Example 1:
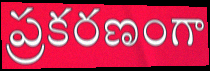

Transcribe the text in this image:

ప్రకరణంగా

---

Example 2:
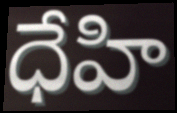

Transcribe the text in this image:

ధేహి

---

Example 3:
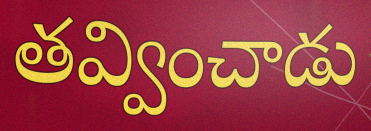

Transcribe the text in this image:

తవ్వించాడు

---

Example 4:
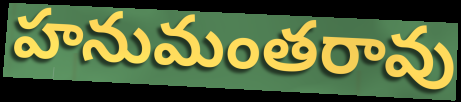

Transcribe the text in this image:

హనుమంతరావు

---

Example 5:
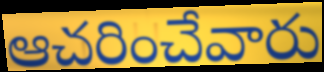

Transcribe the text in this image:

ఆచరించేవారు